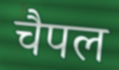
चैपल